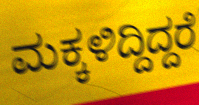
ಮಕ್ಕಳಿದ್ದಿದ್ದರೆ